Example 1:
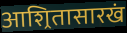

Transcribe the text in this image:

आश्रितासारखं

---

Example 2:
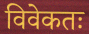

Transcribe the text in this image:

विवेकतः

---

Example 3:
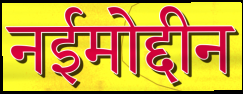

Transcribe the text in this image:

नईमोद्दीन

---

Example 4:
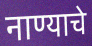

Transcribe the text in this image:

नाण्याचे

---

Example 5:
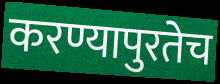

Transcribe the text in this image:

करण्यापुरतेच